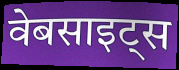
वेबसाइट्स